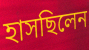
হাসছিলেন